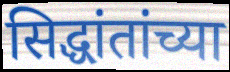
सिद्धांतांच्या